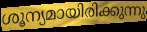
ശൂന്യമായിരിക്കുന്നു